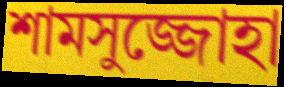
শামসুজ্জোহা